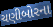
ચણીબોરના